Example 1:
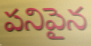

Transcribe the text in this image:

పనిపైన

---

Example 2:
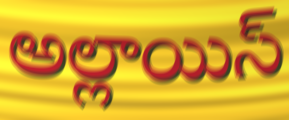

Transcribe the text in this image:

అల్లాయిస్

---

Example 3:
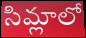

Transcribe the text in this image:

సిమ్లాలో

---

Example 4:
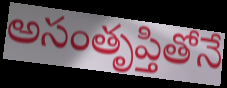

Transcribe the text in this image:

అసంతృప్తితోనే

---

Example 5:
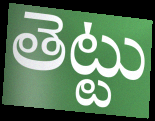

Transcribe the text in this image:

తెట్టు